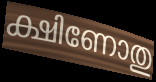
ക്ഷിണോതു